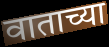
वाताच्या